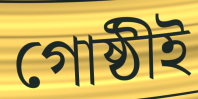
গোষ্ঠীই